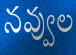
నవ్వుల